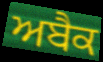
ਅਬੈਕ